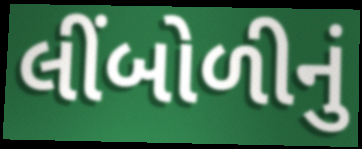
લીંબોળીનું